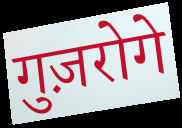
गुज़रोगे